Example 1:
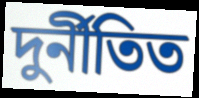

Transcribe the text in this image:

দুৰ্নীতিত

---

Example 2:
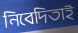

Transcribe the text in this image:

নিবেদিতাই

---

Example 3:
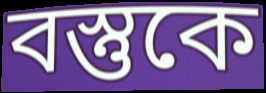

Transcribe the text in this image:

বস্তুকে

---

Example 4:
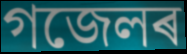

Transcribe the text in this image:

গজেলৰ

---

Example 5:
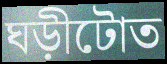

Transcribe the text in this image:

ঘড়ীটোত